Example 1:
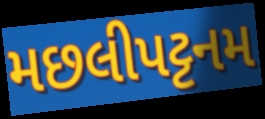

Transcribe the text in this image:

મછલીપટ્ટનમ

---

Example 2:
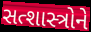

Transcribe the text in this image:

સત્શાસ્ત્રોને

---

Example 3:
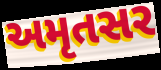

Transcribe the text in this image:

અમૃતસર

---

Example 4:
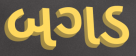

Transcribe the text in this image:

બગડ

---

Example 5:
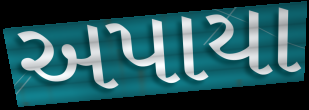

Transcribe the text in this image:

અપાયા